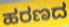
ಹರಣದ